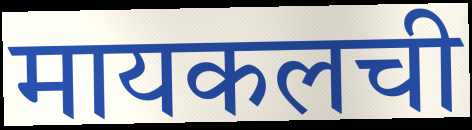
मायकलची